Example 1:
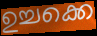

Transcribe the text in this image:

ഉച്ചക്കെ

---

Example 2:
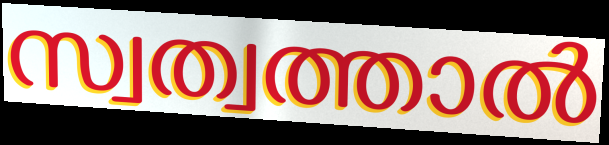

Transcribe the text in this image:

സ്വത്വത്താൽ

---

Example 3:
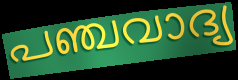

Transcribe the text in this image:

പഞ്ചവാദ്യ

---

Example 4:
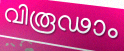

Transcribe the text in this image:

വിരൂഢാം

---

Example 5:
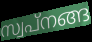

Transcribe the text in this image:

സ്വപ്നങ്ങ